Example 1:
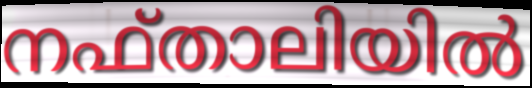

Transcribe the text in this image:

നഫ്താലിയിൽ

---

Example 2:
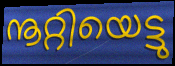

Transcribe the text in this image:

നൂറ്റിയെട്ടു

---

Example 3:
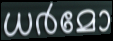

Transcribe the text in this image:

ധർമോ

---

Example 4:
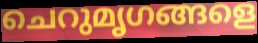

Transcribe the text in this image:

ചെറുമൃഗങ്ങളെ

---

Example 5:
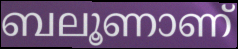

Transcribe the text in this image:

ബലൂണാണ്